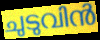
ചുടുവിൻ